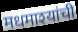
मधमाश्‍यांची